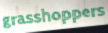
grasshoppers